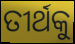
ତୀର୍ଥକୁ